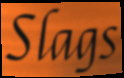
Slags